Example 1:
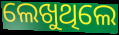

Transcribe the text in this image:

ଲେଖୁଥିଲେ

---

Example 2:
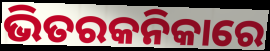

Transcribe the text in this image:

ଭିତରକନିକାରେ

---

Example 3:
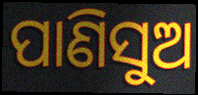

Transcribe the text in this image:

ପାଣିସୁଅ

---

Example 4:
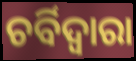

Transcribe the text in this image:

ଚର୍ବିଦ୍ଵାରା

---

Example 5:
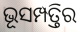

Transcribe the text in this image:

ଭୂସମ୍ପତ୍ତିର